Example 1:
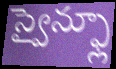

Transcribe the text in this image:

స్వైన్ఫ్లూ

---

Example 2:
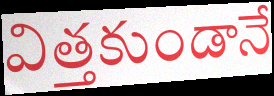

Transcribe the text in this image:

విత్తకుండానే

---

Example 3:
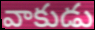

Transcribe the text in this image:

వాకుడు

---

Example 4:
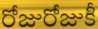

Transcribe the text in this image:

రోజురోజుకీ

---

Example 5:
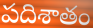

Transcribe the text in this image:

పదిశాతం